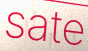
sate